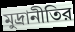
মুদ্রানীতির